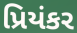
પ્રિયંકર